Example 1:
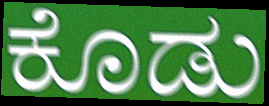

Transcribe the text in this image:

ಕೊಡು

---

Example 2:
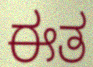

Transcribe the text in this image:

ಈತ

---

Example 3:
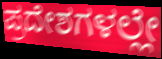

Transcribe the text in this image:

ಪ್ರದೇಶಗಳಲ್ಲೇ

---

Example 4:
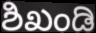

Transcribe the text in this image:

ಶಿಖಂಡಿ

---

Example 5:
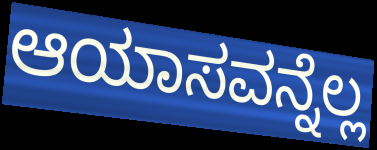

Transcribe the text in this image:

ಆಯಾಸವನ್ನೆಲ್ಲ